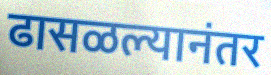
ढासळल्यानंतर